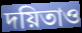
দয়িতাও